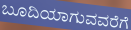
ಬೂದಿಯಾಗುವವರೆಗೆ